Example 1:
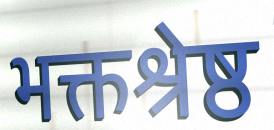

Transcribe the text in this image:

भक्तश्रेष्ठ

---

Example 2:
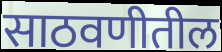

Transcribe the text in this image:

साठवणीतील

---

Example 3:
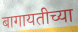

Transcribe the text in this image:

बागायतीच्या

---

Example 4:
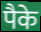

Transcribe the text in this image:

पैके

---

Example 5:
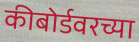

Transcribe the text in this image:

कीबोर्डवरच्या